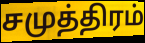
சமுத்திரம்